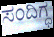
ಸಂದಿಗ್ಧ